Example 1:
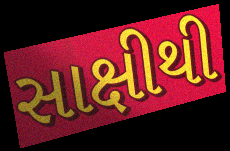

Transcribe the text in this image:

સાક્ષીથી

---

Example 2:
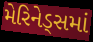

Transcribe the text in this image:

મેરિનેડ્સમાં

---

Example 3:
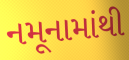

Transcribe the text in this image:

નમૂનામાંથી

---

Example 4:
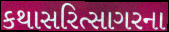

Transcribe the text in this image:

કથાસરિત્સાગરના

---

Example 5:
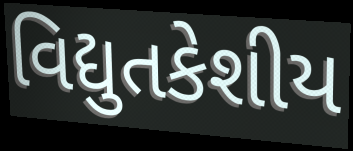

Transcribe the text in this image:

વિદ્યુતકેશીય